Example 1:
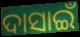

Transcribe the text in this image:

ଦାସାଇଁ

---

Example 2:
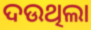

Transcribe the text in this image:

ଦଉଥିଲା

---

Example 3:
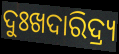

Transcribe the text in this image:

ଦୁଃଖଦାରିଦ୍ର୍ୟ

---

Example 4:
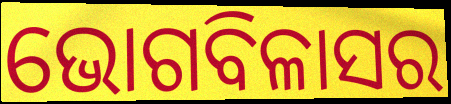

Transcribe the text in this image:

ଭୋଗବିଳାସର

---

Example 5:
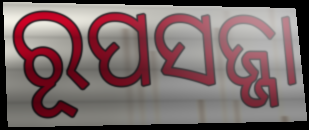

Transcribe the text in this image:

ରୂପସଜ୍ଜା